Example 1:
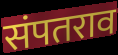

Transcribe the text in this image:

संपतराव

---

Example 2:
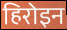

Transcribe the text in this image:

हिरोइन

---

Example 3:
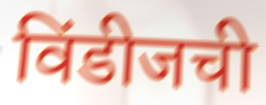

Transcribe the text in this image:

विंडीजची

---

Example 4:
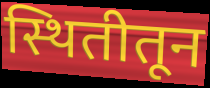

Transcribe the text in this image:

स्थितीतून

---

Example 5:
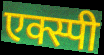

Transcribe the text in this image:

एक्स्पी